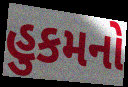
હુકમનો